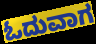
ಓದುವಾಗ